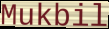
Mukbil